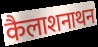
कैलाशनाथन